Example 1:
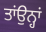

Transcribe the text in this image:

ਤਾਂਉਨ੍ਹਾਂ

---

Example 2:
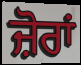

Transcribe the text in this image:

ਜ਼ੋਰਾਂ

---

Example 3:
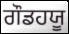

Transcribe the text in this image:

ਗੌਡਹਯੂ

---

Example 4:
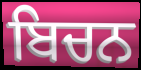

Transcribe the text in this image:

ਬਿਚਨ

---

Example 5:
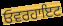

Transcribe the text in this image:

ਓਵਰਹਾਇਟ